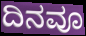
ದಿನವೂ